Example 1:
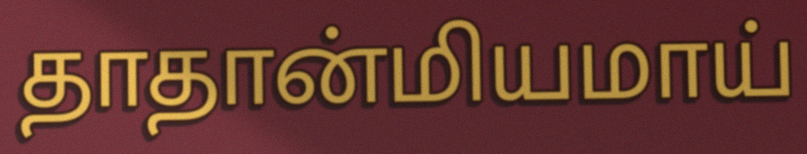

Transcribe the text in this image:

தாதான்மியமாய்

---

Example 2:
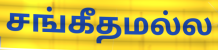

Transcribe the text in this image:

சங்கீதமல்ல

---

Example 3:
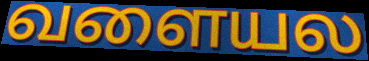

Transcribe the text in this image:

வளையல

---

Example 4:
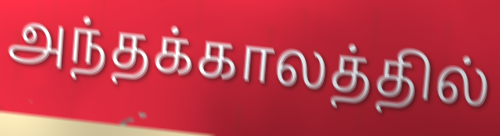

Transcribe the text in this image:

அந்தக்காலத்தில்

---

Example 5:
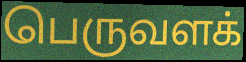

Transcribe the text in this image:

பெருவளக்